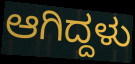
ಆಗಿದ್ದಳು